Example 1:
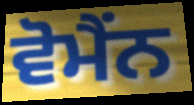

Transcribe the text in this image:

ਵੋਮੈਂਨ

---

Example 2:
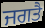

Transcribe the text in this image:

ਜਗਤੈ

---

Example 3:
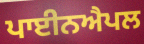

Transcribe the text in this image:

ਪਾਈਨਐਪਲ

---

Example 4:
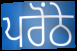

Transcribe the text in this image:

ਪਰੋਂਠੇ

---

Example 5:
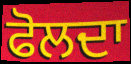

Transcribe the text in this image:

ਫੋਲਦਾ